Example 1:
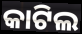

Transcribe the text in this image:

କାଟିଲ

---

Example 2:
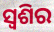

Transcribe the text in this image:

ସ୍ଵଶିର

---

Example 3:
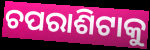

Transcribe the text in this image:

ଚପରାଶିଟାକୁ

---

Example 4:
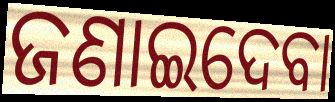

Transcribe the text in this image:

ଜଣାଇଦେବା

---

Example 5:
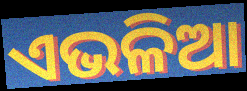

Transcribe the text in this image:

ଏଭଳିଆ